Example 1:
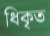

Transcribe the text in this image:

ধিকৃত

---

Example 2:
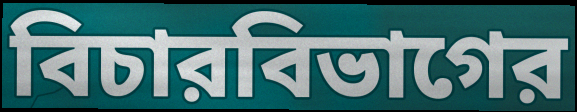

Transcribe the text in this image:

বিচারবিভাগের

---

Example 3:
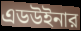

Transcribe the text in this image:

এডউইনার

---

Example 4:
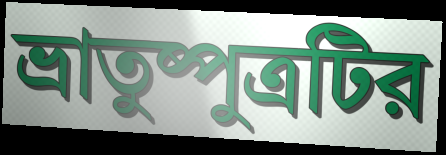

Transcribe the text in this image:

ভ্রাতুষ্পুত্রটির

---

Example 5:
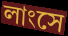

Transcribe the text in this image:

লাংসে